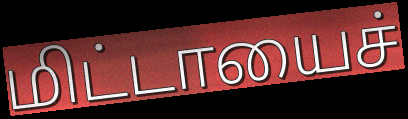
மிட்டாயைச்